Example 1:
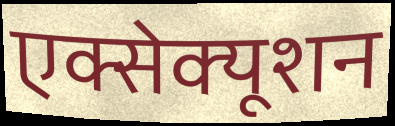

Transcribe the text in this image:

एक्सेक्यूशन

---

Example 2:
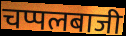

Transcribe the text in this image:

चप्पलबाजी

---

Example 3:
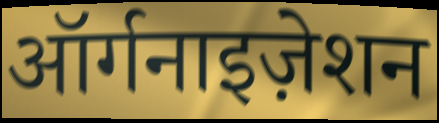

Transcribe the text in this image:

ऑर्गनाइज़ेशन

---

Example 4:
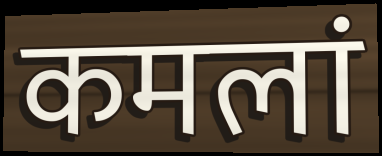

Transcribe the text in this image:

कमलां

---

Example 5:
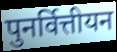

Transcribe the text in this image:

पुनर्वित्तीयन